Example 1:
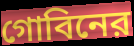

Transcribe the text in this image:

গোবিনের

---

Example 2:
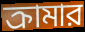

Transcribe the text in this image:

ক্রামার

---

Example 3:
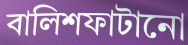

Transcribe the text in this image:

বালিশফাটানো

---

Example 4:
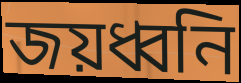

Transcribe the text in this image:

জয়ধ্বনি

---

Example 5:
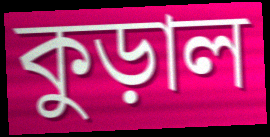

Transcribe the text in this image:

কুড়াল